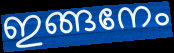
ഇങ്ങനേം